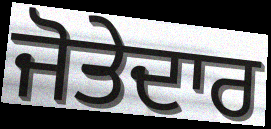
ਜੋਤੇਦਾਰ